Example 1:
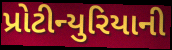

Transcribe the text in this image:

પ્રોટીન્યુરિયાની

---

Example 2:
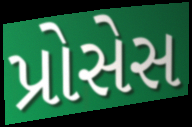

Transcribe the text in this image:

પ્રોસેસ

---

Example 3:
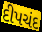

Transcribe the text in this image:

દીપચંદ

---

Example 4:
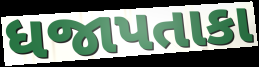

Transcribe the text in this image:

ધજાપતાકા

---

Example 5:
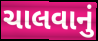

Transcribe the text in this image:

ચાલવાનું